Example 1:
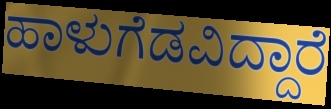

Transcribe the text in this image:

ಹಾಳುಗೆಡವಿದ್ದಾರೆ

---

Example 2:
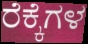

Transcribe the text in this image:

ರೆಕ್ಕೆಗಳ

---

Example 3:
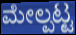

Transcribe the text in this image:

ಮೇಲ್ಪಟ್ಟ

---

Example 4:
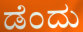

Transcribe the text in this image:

ಡೆಂದು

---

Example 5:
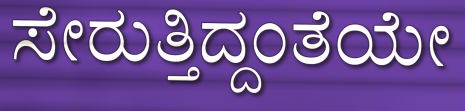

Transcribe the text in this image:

ಸೇರುತ್ತಿದ್ದಂತೆಯೇ